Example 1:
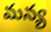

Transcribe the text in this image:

మన్య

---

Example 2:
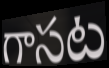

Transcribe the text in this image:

గాసట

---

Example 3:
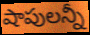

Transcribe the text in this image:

షాపులన్నీ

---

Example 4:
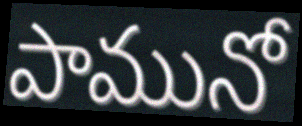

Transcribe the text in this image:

పామునో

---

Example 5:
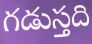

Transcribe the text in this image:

గడుస్తది